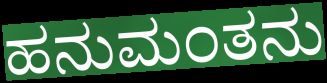
ಹನುಮಂತನು